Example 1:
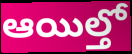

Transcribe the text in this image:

ఆయిల్తో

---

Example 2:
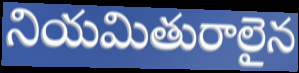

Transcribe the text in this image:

నియమితురాలైన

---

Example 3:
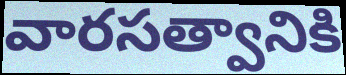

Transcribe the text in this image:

వారసత్వానికి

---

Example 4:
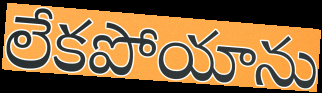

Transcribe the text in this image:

లేకపోయాను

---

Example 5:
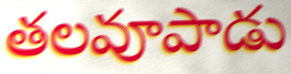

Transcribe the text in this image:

తలవూపాడు